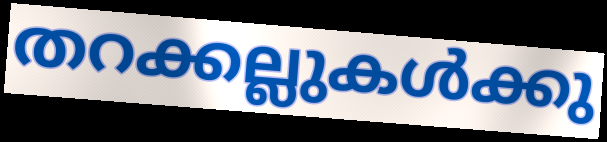
തറക്കല്ലുകൾക്കു